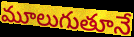
మూలుగుతూనే